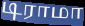
டிராமா